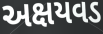
અક્ષયવડ